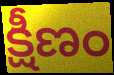
క్షీణం